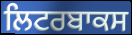
ਲਿਟਰਬਾਕਸ